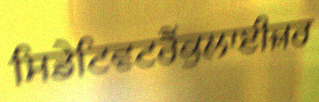
ਸਿਡੇਟਿਵਟਰੈਂਕੁਲਾਈਜ਼ਰ